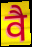
वै